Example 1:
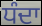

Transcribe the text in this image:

ਧੰਦਾ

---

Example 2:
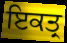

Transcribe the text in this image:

ਇਕਤ੍ਰ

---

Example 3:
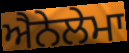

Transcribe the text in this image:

ਐਨੇਲੇਮਾ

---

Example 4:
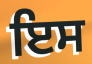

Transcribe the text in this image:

ਇਸ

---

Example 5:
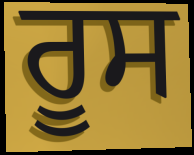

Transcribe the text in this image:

ਰੂਸ